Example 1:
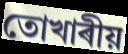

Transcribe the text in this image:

তোখাৰীয়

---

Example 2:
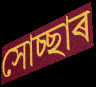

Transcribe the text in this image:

সোচ্ছাৰ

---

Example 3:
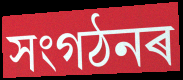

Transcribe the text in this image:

সংগঠনৰ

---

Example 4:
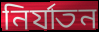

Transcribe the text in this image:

নিৰ্যাতন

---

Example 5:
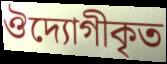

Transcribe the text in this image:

ঔদ্যোগীকৃত